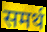
समर्थ